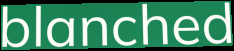
blanched